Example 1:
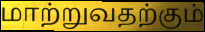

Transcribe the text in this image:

மாற்றுவதற்கும்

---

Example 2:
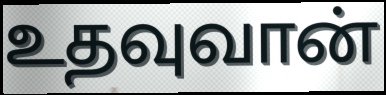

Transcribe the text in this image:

உதவுவான்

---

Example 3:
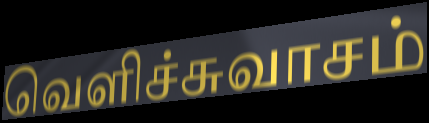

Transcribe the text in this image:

வெளிச்சுவாசம்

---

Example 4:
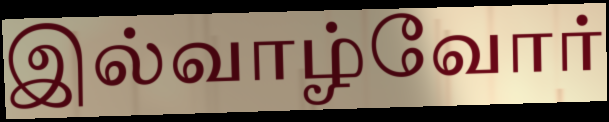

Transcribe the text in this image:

இல்வாழ்வோர்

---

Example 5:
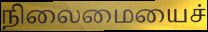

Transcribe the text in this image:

நிலைமையைச்